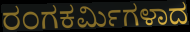
ರಂಗಕರ್ಮಿಗಳಾದ